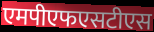
एमपीएफएसटीएस